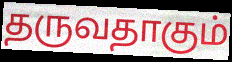
தருவதாகும்